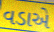
વડાએ